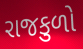
રાજકુળો